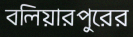
বলিয়ারপুরের